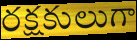
రక్షకులుగా